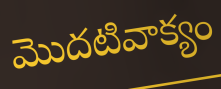
మొదటివాక్యం